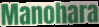
Manohara